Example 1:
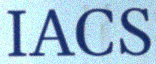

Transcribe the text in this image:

IACS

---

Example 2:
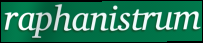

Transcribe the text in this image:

raphanistrum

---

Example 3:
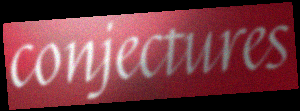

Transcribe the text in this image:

conjectures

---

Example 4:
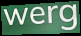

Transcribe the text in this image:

werg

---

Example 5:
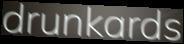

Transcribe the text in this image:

drunkards